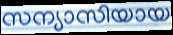
സന്യാസിയായ